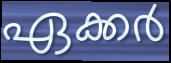
ഏക്കർ